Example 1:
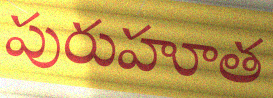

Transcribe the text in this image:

పురుహూత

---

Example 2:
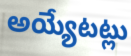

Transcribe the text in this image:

అయ్యేటట్లు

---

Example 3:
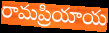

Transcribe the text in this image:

రామప్రియాయ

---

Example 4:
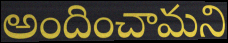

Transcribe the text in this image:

అందించామని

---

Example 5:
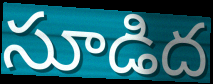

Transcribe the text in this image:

సూడిద